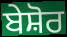
ਬੇਸ਼ੋਰ